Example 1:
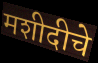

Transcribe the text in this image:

मशीदीचे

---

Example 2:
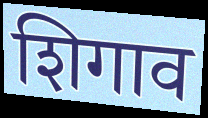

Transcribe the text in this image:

शिगाव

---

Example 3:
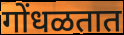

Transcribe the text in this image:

गोंधळतात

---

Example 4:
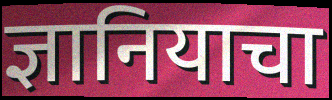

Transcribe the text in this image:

ज्ञानियाचा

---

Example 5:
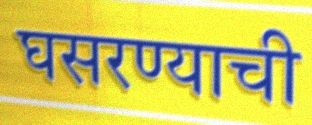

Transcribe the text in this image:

घसरण्याची